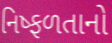
નિષ્ફળતાનો